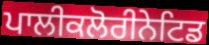
ਪਾਲੀਕਲੋਰੀਨੇਟਿਡ